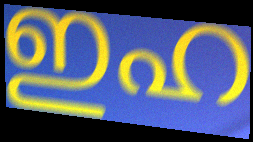
ഇഹ